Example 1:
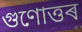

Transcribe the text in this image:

গুণোত্তৰ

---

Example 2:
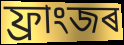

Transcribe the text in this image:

ফ্ৰাংজৰ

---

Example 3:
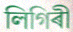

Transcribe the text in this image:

লিগিৰী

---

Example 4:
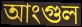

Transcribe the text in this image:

আংগুল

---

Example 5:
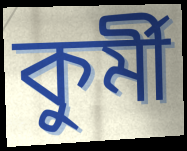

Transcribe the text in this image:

কুৰ্মী